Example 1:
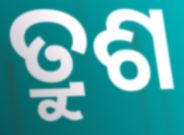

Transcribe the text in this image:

ତ୍ରୁଶ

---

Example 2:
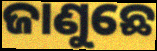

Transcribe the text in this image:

ଜାଣୁଛେ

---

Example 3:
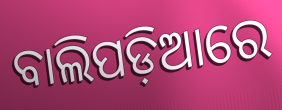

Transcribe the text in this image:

ବାଲିପଡ଼ିଆରେ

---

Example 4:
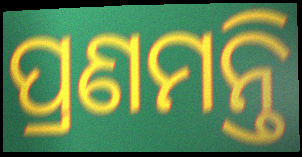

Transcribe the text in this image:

ପ୍ରଣମନ୍ତି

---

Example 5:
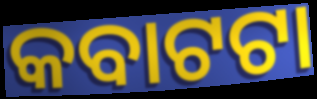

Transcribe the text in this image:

କବାଟଟା